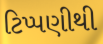
ટિપ્પણીથી